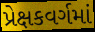
પ્રેક્ષકવર્ગમાં